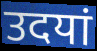
उदयां